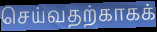
செய்வதற்காகக்